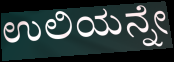
ಉಲಿಯನ್ನೇ